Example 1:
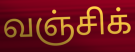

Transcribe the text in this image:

வஞ்சிக்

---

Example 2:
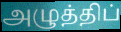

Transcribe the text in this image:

அழுத்திப்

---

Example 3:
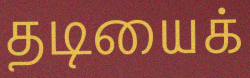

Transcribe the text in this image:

தடியைக்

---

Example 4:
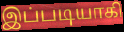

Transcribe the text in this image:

இப்படியாகி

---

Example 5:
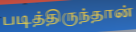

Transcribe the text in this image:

படித்திருந்தான்